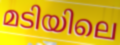
മടിയിലെ